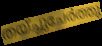
തയ്ച്ചുചേർത്തു